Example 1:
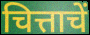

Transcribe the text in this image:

चित्ताचें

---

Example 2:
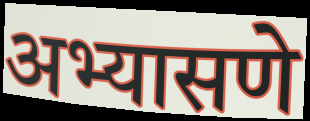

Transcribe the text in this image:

अभ्यासणे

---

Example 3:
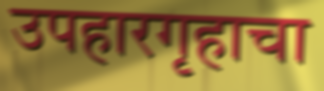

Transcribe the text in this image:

उपहारगृहाचा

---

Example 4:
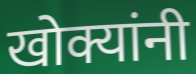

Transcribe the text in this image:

खोक्यांनी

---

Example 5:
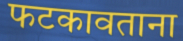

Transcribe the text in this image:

फटकावताना